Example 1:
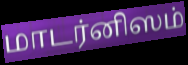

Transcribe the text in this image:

மாடர்னிஸம்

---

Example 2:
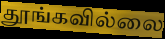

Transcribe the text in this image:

தூங்கவில்லை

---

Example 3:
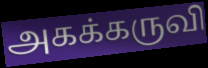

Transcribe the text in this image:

அகக்கருவி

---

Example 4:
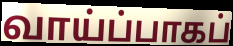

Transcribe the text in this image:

வாய்ப்பாகப்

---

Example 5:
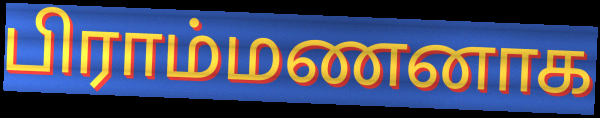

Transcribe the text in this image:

பிராம்மணனாக